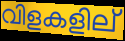
വിളകളില്